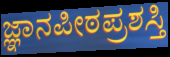
ಜ್ಞಾನಪೀಠಪ್ರಶಸ್ತಿ